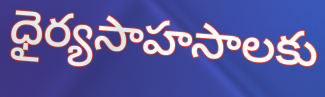
ధైర్యసాహసాలకు